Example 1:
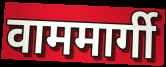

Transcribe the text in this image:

वाममार्गी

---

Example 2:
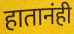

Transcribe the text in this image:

हातानंही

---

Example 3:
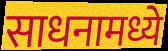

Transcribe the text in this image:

साधनामध्ये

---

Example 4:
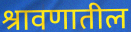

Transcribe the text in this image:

श्रावणातील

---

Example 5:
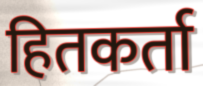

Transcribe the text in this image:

हितकर्ता